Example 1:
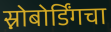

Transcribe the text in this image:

स्नोबोर्डिंगचा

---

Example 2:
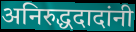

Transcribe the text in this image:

अनिरुद्धदादांनी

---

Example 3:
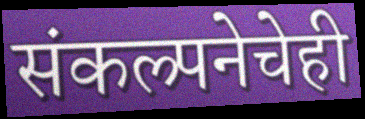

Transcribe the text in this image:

संकल्पनेचेही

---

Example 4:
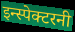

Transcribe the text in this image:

इन्स्पेक्टरनी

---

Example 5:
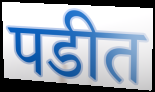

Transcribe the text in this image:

पडीत